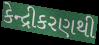
કેન્દ્રીકરણથી